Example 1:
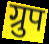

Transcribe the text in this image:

ग्रुप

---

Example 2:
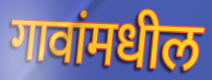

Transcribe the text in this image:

गावांमधील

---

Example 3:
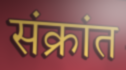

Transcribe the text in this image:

संक्रांत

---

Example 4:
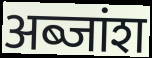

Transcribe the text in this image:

अब्जांश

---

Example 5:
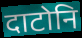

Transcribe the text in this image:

दाटोनि